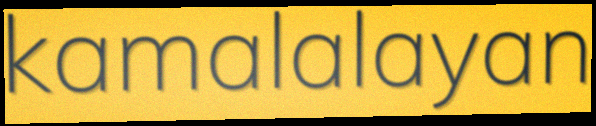
kamalalayan